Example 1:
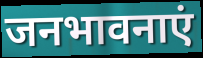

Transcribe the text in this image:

जनभावनाएं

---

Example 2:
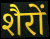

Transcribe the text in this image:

शैरों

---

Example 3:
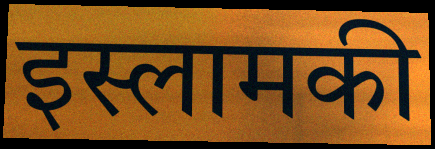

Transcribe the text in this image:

इस्लामकी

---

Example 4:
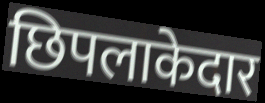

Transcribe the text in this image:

छिपलाकेदार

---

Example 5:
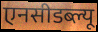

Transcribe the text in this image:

एनसीडब्ल्यू